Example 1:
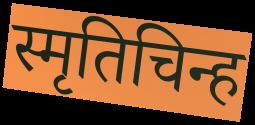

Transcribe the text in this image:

स्मृतिचिन्ह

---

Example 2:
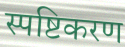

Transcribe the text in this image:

स्पष्टिकरण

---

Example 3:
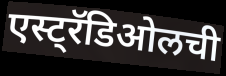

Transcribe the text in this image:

एस्ट्रॅडिओलची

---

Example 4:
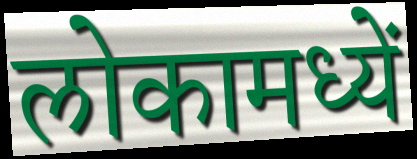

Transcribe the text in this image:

लोकामध्यें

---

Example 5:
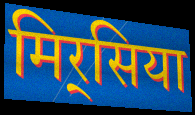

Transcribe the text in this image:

मिर्सिया